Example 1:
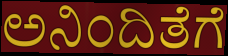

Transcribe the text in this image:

ಅನಿಂದಿತೆಗೆ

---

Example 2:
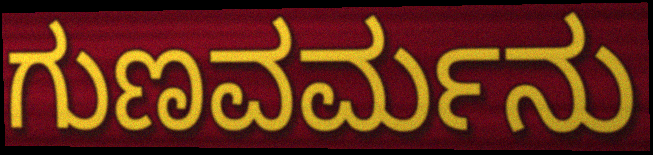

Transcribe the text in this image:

ಗುಣವರ್ಮನು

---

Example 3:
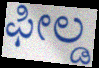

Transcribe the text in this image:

ಫೀಲ್ಡ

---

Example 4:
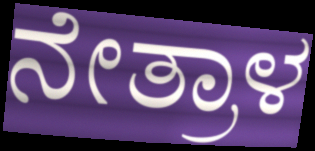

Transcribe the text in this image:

ನೇತ್ರಾಳ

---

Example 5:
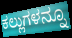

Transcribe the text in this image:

ಕಲ್ಲುಗಳನ್ನೂ